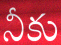
నీకు